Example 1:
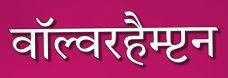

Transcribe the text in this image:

वॉल्वरहैम्प्टन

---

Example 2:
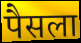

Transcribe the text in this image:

पैसला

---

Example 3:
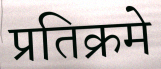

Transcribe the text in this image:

प्रतिक्रमे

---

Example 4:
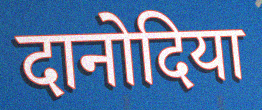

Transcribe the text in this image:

दानोदिया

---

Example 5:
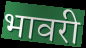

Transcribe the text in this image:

भावरी